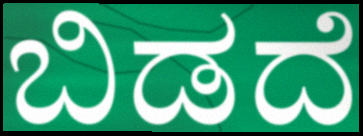
ಬಿಡದೆ